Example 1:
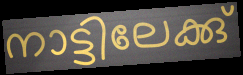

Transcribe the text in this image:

നാട്ടിലേക്കു്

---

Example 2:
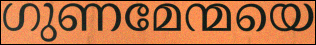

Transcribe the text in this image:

ഗുണമേന്മയെ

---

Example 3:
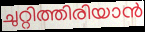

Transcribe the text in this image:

ചുറ്റിത്തിരിയാൻ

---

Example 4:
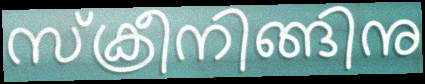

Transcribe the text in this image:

സ്ക്രീനിങ്ങിനു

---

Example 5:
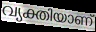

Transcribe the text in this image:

വ്യക്തിയാണ്